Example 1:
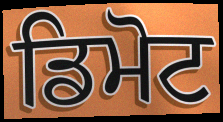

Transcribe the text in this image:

ਡਿਮੋਟ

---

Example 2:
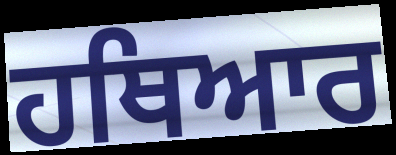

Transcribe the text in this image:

ਹਥਿਆਰ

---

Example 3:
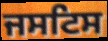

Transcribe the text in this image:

ਜਸਟਿਸ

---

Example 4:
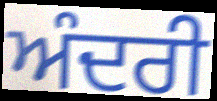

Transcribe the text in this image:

ਅੰਦਰੀ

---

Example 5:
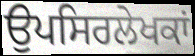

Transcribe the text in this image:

ਉਪਸਿਰਲੇਖਕਾਂ